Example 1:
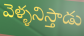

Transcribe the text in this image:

వెళ్ళనిస్తాడు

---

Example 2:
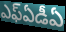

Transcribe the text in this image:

ఎఫ్ఏడీఏ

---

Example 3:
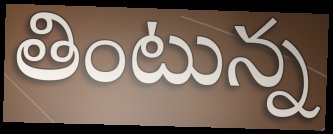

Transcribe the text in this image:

తింటున్న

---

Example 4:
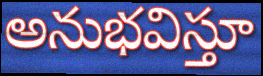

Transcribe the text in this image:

అనుభవిస్తూ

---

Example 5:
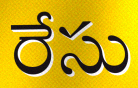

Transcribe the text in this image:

రేసు